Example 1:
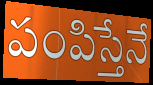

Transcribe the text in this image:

పంపిస్తేనే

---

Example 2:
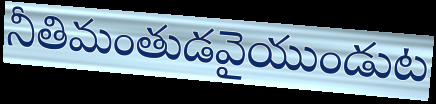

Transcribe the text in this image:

నీతిమంతుడవైయుండుట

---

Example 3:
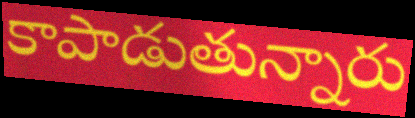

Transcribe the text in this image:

కాపాడుతున్నారు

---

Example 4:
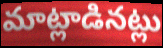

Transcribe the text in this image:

మాట్లాడినట్లు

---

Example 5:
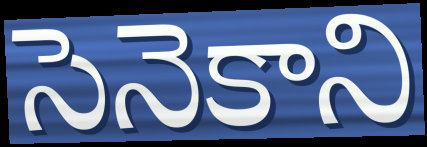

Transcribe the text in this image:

సెనెకాని